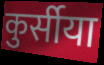
कुर्सीया